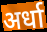
अर्धा